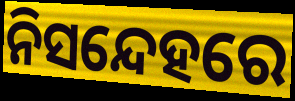
ନିସନ୍ଦେହରେ